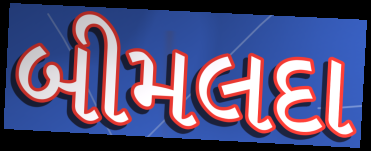
બીમલદા